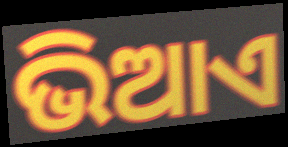
ଭିଆଏ